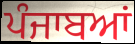
ਪੰਜਾਬਆਂ